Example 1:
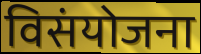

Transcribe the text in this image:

विसंयोजना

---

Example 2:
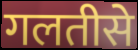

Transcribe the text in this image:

गलतीसे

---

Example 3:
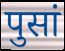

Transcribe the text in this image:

पुसां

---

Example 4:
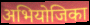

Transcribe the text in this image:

अभियोजिका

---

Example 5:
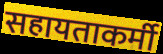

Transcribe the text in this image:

सहायताकर्मी